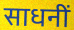
साधनीं